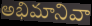
అభిమానివా